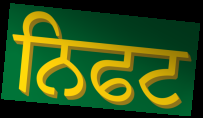
ਨਿਫਟ